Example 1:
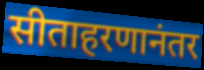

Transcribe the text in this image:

सीताहरणानंतर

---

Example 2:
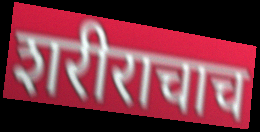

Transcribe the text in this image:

शरीराचाच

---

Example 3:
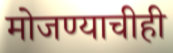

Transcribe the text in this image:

मोजण्याचीही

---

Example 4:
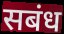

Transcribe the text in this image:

सबंध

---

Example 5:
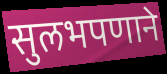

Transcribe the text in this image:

सुलभपणाने